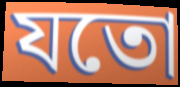
যতো